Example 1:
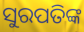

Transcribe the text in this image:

ସୁରପତିଙ୍କ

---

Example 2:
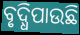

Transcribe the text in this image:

ବୃଦ୍ଧିପାଉଛି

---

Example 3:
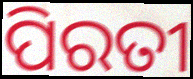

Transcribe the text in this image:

ପିରତୀ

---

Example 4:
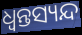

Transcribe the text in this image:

ଧ୍ଵନ୍ତସ୍ୟନ୍ଦ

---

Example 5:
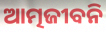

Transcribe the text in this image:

ଆତ୍ମଜୀବନି